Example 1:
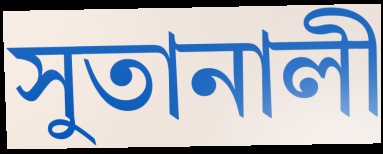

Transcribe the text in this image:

সুতানালী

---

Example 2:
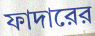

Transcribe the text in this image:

ফাদারের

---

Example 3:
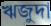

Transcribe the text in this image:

ঋজুদা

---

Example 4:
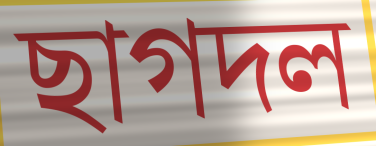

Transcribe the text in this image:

ছাগদল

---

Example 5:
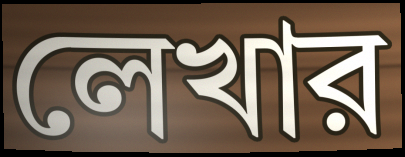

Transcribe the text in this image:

লেখার